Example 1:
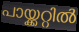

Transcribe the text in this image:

പായ്ക്കറ്റിൽ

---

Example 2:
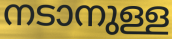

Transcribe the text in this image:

നടാനുള്ള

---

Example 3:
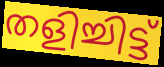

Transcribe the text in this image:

തളിച്ചിട്ട്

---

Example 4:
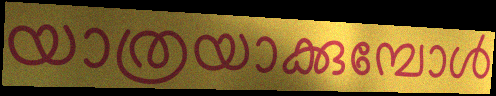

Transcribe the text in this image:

യാത്രയാക്കുമ്പോൾ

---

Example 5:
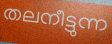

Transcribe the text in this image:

തലനീട്ടുന്ന